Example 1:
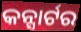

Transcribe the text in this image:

କନ୍ସାର୍ଟର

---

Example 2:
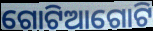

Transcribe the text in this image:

ଗୋଟିଆଗୋଟି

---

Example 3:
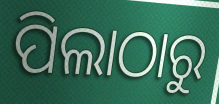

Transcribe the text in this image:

ପିଲାଠାରୁ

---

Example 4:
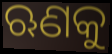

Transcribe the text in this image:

ଋଣକୁ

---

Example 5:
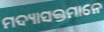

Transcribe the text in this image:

ମଦ୍ୟାସକ୍ତମାନେ